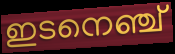
ഇടനെഞ്ച്